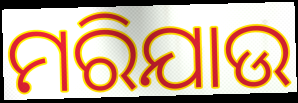
ମରିଯାଉ